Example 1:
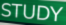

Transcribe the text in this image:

STUDY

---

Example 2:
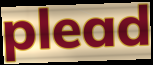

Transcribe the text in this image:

plead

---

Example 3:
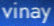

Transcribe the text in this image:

vinay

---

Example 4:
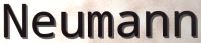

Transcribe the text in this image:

Neumann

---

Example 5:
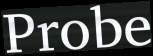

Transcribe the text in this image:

Probe